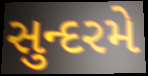
સુન્દરમે